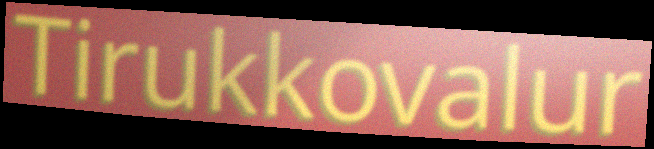
Tirukkovalur